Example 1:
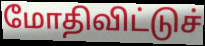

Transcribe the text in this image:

மோதிவிட்டுச்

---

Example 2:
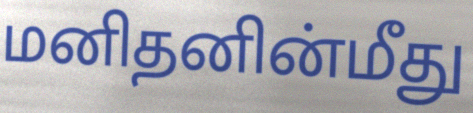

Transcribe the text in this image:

மனிதனின்மீது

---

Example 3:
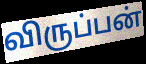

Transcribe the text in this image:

விருப்பன்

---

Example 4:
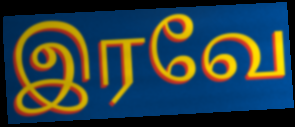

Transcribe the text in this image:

இரவே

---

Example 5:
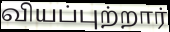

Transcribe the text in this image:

வியப்புற்றார்